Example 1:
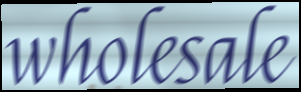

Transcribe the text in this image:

wholesale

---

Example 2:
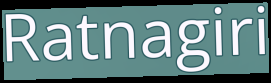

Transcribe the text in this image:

Ratnagiri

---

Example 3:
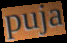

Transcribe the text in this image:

puja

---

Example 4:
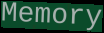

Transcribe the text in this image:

Memory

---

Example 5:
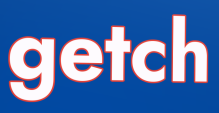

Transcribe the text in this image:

getch